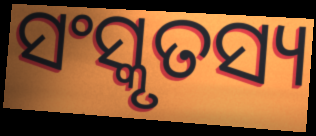
ସଂସ୍କୃତସ୍ୟ